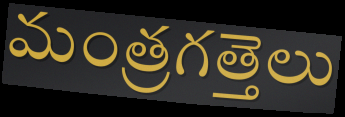
మంత్రగత్తెలు